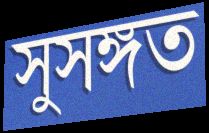
সুসঙ্গত